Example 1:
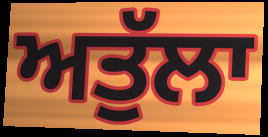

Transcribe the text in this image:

ਅਤੁੱਲਾ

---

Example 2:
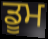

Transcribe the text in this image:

ਡੂਮ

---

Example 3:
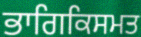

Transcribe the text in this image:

ਭਾਗਿਕਿਸਮਤ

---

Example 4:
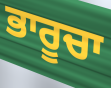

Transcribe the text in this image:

ਭਾਰੂਚਾ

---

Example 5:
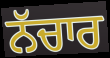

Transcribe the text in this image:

ਨੱਚਾਰ